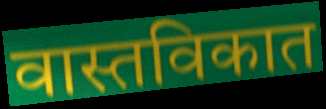
वास्तविकात